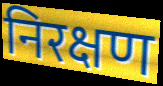
निरक्षण